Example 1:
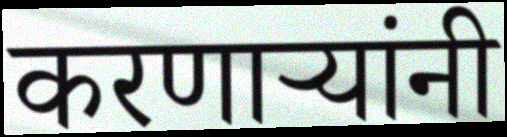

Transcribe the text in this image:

करणाऱ्यांनी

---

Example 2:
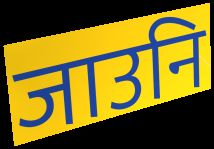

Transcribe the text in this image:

जाउनि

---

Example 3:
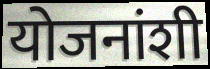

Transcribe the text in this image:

योजनांशी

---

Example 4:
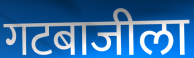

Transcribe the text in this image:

गटबाजीला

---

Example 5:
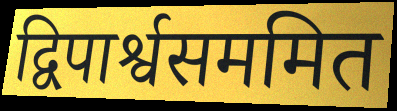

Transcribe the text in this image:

द्विपार्श्वसममित